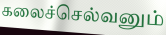
கலைச்செல்வனும்